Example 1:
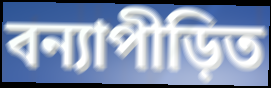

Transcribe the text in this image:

বন্যাপীড়িত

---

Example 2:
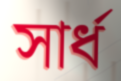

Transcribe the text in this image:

সার্ধ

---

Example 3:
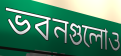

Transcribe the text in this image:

ভবনগুলোও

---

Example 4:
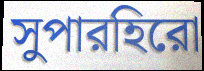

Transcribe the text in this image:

সুপারহিরো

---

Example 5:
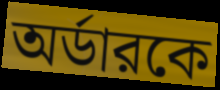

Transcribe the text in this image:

অর্ডারকে